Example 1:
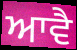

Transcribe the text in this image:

ਆਵੈ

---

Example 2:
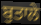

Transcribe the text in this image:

ਬੁਤਾਲੇ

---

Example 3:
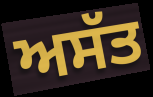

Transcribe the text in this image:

ਅਸੱਤ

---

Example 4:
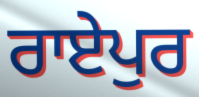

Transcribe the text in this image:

ਰਾਏਪੁਰ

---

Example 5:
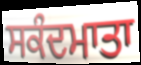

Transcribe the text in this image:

ਸਕੰਦਮਾਤਾ